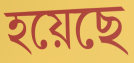
হয়েছে